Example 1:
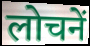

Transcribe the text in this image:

लोचनें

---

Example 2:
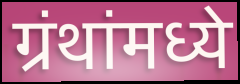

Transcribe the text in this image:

ग्रंथांमध्ये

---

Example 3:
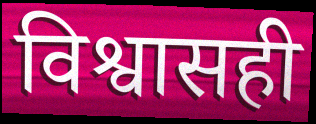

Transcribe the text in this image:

विश्वासही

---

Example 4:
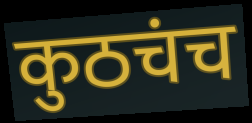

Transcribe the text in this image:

कुठचंच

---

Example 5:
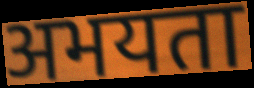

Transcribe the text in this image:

अभयता